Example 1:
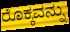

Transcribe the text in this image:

ರೊಕ್ಕವನ್ನು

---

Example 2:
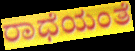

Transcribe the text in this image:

ರಾಧೆಯಂತೆ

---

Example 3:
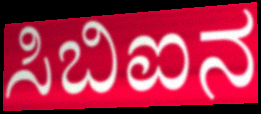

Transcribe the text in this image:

ಸಿಬಿಐನ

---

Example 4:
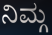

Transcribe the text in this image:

ನಿಮ್ಗ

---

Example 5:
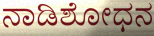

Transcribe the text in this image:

ನಾಡಿಶೋಧನ